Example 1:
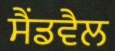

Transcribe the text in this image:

ਸੈਂਡਵੈਲ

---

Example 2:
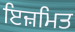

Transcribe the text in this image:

ਇਜ਼ਮਿਤ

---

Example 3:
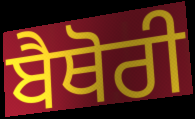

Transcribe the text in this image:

ਬੈਥੋਰੀ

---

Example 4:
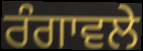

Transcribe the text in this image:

ਰੰਗਾਵਲੇ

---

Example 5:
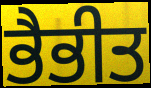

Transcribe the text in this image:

ਭੈਭੀਤ